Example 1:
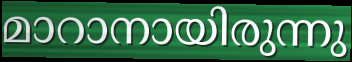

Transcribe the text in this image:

മാറാനായിരുന്നു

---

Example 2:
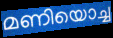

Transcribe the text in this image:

മണിയൊച്ച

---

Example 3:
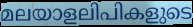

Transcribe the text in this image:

മലയാളലിപികളുടെ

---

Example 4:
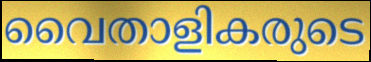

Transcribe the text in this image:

വൈതാളികരുടെ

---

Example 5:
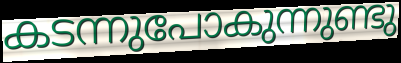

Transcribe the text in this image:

കടന്നുപോകുന്നുണ്ടു